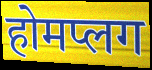
होमप्लग